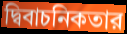
দ্বিবাচনিকতার